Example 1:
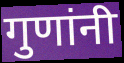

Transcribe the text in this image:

गुणांनी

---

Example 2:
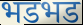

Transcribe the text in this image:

भडभड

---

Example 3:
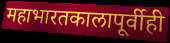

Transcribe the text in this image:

महाभारतकालापूर्वीही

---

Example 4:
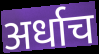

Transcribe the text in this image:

अर्धाच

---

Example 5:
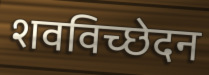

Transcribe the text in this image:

शवविच्छेदन